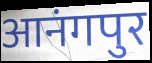
आनंगपुर